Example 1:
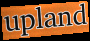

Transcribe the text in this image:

upland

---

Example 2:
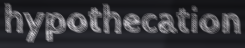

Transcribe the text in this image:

hypothecation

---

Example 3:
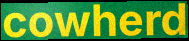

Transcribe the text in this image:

cowherd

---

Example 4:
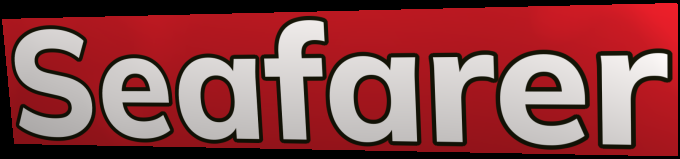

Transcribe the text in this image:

Seafarer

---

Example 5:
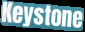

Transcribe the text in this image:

Keystone